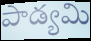
పాడ్యమి